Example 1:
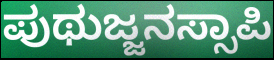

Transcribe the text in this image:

ಪುಥುಜ್ಜನಸ್ಸಾಪಿ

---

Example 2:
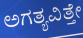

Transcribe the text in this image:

ಅಗತ್ಯವಿತ್ತೇ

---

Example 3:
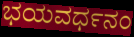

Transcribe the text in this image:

ಭಯವರ್ಧನಂ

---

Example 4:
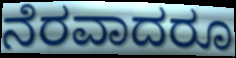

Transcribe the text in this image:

ನೆರವಾದರೂ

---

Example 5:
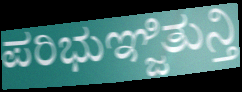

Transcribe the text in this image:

ಪರಿಭುಞ್ಜಿತುನ್ತಿ